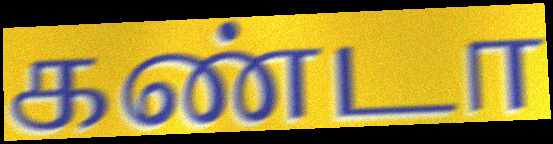
கண்டா